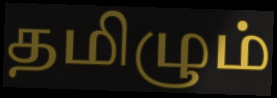
தமிழும்